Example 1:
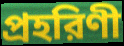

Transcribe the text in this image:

প্রহরিণী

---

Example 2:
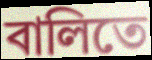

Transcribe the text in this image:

বালিতে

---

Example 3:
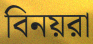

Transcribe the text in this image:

বিনয়রা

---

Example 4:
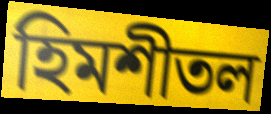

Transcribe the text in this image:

হিমশীতল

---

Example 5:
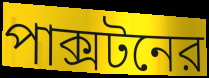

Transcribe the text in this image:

পাক্সটনের